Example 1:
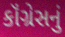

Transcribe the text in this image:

કૉંગ્રેસનું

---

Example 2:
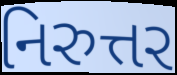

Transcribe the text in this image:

નિરુત્તર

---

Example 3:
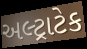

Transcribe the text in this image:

અલ્ટ્રાટેક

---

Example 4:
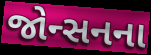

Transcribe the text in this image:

જોન્સનના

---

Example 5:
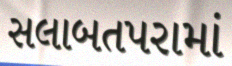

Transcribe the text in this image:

સલાબતપરામાં